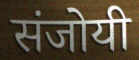
संजोयी